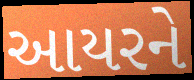
આયરને